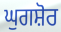
ਘੁਗਸ਼ੋਰ